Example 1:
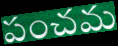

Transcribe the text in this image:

పంచమ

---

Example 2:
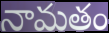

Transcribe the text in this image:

నామతం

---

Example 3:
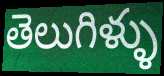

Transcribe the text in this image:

తెలుగిళ్ళు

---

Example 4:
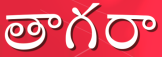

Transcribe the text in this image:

తాగరా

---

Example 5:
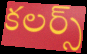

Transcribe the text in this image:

కలర్స్